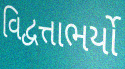
વિદ્વત્તાભર્યો